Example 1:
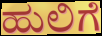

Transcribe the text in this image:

ಹುಲಿಗೆ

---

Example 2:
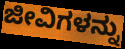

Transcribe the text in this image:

ಜೀವಿಗಳನ್ನು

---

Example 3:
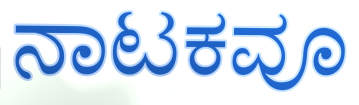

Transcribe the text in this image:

ನಾಟಕವೂ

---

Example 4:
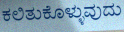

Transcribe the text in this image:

ಕಲಿತುಕೊಳ್ಳುವುದು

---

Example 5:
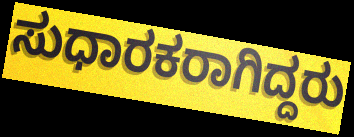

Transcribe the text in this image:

ಸುಧಾರಕರಾಗಿದ್ದರು